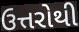
ઉત્તરોથી